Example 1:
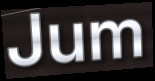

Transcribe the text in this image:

Jum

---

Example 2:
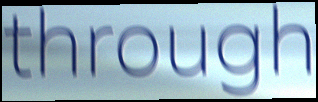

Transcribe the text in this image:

through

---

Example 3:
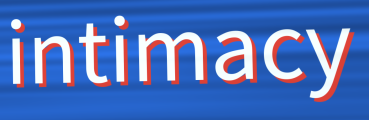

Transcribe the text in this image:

intimacy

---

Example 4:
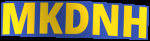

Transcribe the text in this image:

MKDNH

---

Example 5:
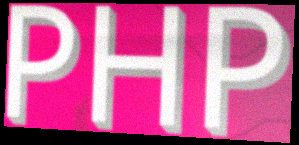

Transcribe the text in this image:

PHP